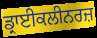
ਡ੍ਰਾਈਕਲੀਨਰਜ਼